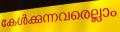
കേൾക്കുന്നവരെല്ലാം